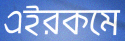
এইরকমে